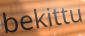
bekittu